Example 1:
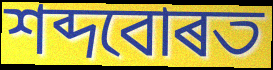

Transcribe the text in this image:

শব্দবোৰত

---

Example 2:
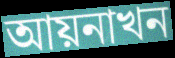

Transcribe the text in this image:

আয়নাখন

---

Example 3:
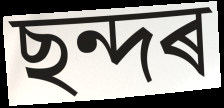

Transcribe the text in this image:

ছন্দৰ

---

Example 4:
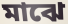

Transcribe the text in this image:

মাঝে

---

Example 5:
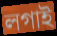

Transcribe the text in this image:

লগাই